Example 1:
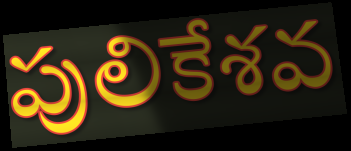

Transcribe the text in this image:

పులికేశవ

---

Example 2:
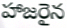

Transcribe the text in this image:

హాజరైన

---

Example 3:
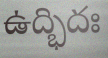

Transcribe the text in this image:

ఉద్భిదః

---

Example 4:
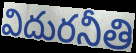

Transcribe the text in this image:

విదురనీతి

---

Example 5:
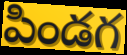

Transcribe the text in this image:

పిండగ